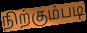
நிற்கும்படி